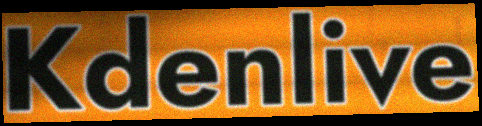
Kdenlive